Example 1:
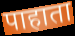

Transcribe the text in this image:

पाहाता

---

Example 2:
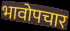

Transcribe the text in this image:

भावोपचार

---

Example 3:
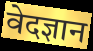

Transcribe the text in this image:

वेदज्ञान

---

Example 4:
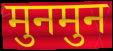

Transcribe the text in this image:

मुनमुन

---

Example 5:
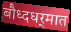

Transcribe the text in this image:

बौध्दधर्मात